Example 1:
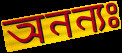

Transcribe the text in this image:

অনন্যঃ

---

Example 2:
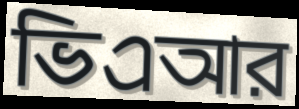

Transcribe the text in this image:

ভিএআর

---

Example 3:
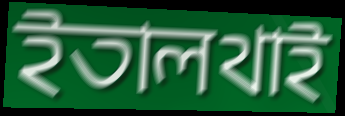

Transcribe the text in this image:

ইতালথাই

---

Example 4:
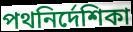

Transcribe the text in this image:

পথনির্দেশিকা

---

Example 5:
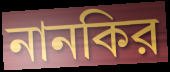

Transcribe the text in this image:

নানকির